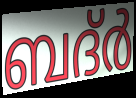
ബദ്ർ